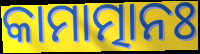
କାମାତ୍ମାନଃ